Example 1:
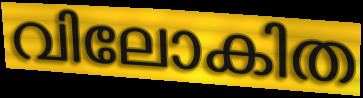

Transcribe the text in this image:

വിലോകിത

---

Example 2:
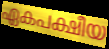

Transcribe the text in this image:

ഏകപക്ഷീയ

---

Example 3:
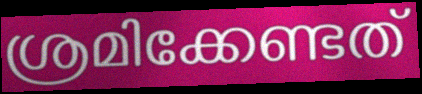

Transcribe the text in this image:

ശ്രമിക്കേണ്ടത്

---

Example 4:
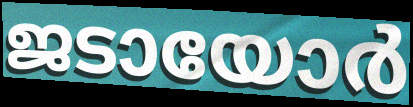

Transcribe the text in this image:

ജടായോർ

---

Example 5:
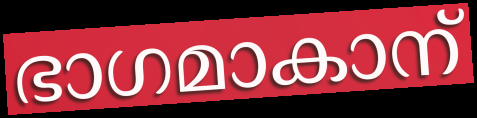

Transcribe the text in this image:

ഭാഗമാകാന്